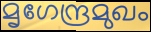
മൃഗേന്ദ്രമുഖം